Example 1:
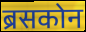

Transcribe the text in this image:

ब्रसकोन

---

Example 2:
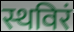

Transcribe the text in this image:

स्थविरं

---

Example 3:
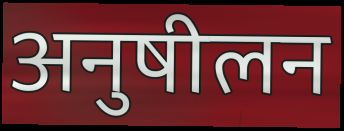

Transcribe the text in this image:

अनुषीलन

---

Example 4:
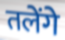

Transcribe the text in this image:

तलेंगे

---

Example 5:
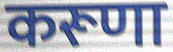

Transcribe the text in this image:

करूणा